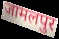
जामलपुर